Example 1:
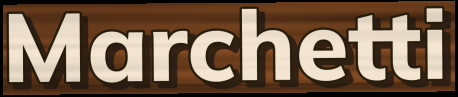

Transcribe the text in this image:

Marchetti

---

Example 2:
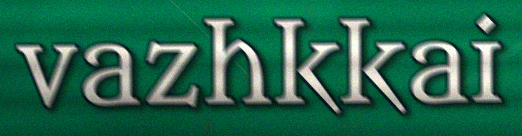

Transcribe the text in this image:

vazhkkai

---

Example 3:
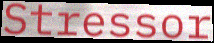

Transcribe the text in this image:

Stressor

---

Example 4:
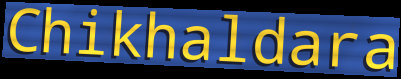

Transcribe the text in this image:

Chikhaldara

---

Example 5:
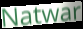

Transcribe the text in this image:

Natwar